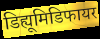
डिह्यूमिडिफायर